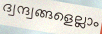
ദ്വന്ദ്വങ്ങളെല്ലാം